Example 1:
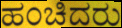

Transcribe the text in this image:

ಹಂಚಿದರು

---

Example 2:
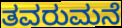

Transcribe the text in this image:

ತವರುಮನೆ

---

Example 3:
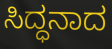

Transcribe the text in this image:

ಸಿದ್ಧನಾದ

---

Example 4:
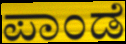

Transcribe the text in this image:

ಪಾಂಡೆ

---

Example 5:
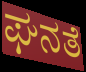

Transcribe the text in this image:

ಘನತೆ